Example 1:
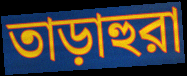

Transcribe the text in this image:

তাড়াহুরা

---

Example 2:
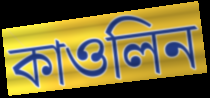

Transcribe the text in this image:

কাওলিন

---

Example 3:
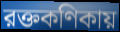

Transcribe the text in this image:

রক্তকণিকায়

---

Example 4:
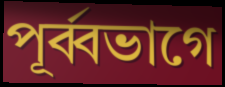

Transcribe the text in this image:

পূর্ব্বভাগে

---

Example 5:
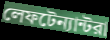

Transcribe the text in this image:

লেফটেন্যান্টরা